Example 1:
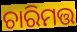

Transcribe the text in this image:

ଚାରିମତ୍ତ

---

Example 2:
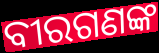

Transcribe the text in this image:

ବୀରଗଣଙ୍କ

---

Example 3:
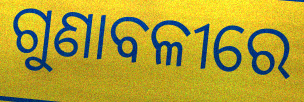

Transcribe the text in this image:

ଗୁଣାବଳୀରେ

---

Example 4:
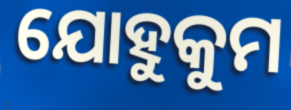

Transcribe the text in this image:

ଯୋହୁକୁମ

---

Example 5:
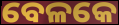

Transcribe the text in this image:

ବେଳକେ